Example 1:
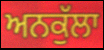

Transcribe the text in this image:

ਅਨਕੁੱਲਾ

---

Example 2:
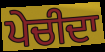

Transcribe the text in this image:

ਪੇਚੀਦਾ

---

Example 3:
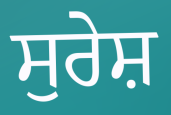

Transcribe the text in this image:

ਸੁਰੇਸ਼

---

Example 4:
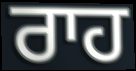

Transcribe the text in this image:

ਰਾਹ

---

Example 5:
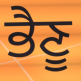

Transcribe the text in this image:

ਭੈਣੂ